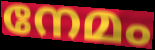
നേമം